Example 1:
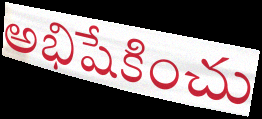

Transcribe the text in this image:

అభిషేకించు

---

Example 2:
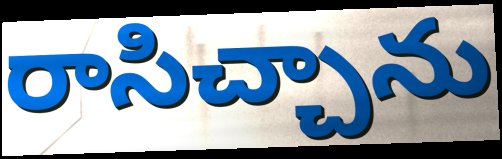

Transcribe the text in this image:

రాసిచ్చాను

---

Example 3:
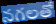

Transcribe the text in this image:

నగలతో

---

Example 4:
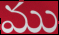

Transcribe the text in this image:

ము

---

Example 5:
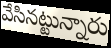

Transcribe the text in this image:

వేసినట్టున్నారు